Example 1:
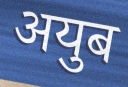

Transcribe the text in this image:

अयुब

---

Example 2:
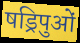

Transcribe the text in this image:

षड्रिपुओं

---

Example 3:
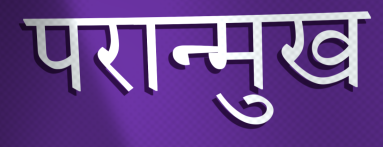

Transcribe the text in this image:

परान्मुख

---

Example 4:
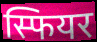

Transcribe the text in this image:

स्फियर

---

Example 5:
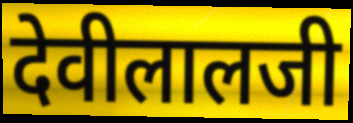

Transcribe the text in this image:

देवीलालजी